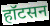
हॉटसन